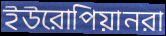
ইউরোপিয়ানরা